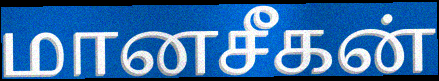
மானசீகன்